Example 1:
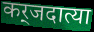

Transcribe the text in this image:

कर्जदात्या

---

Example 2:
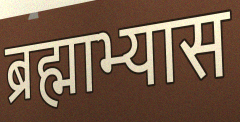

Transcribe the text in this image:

ब्रह्माभ्यास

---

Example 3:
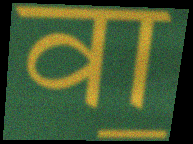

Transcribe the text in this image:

वा॒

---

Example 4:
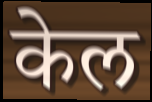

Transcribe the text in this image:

केल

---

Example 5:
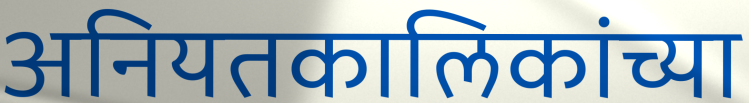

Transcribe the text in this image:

अनियतकालिकांच्या